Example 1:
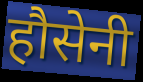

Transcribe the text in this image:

हौसेनी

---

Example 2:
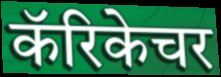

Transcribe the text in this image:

कॅरिकेचर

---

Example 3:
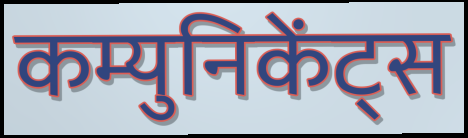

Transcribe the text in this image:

कम्युनिकेंट्स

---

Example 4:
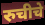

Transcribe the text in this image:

रुचीचे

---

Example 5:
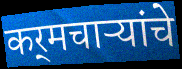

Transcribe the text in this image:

कर्मचाऱ्यांचे